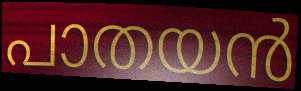
പാതയൻ